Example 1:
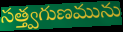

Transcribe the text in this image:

సత్త్వగుణమును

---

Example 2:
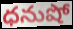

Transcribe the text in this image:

ధనుషో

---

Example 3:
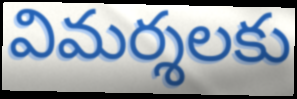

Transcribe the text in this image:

విమర్శలకు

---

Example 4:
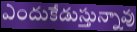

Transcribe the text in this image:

ఎందుకేడుస్తున్నావు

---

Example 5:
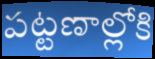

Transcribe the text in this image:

పట్టణాల్లోకి